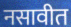
नसावीत